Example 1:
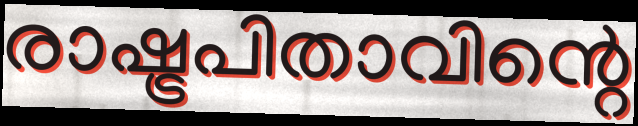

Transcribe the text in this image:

രാഷ്ട്രപിതാവിന്റെ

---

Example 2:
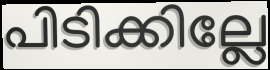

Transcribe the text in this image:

പിടിക്കില്ലേ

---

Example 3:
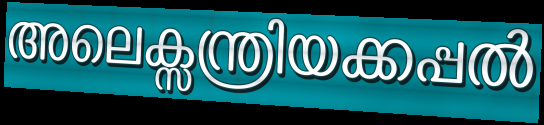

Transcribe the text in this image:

അലെക്സന്ത്രിയക്കപ്പൽ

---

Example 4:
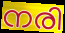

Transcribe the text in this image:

നരി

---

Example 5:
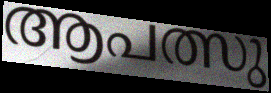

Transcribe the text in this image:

ആപത്സു